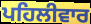
ਪਹਿਲੀਵਾਰ